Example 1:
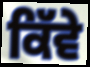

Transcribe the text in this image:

ਕਿੱਵੇ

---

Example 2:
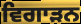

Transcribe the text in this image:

ਵਿਗਾੜਨ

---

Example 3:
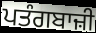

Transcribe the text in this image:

ਪਤੰਗਬਾਜ਼ੀ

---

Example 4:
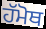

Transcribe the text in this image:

ਹੱਮੋਥ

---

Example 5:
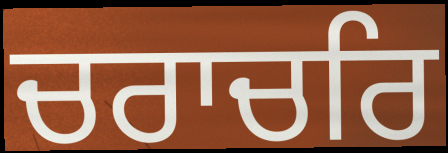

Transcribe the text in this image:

ਚਰਾਚਰਿ